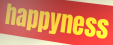
happyness